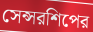
সেন্সরশিপের